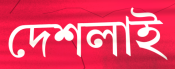
দেশলাই